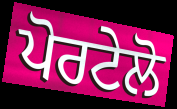
ਪੋਰਟੇਲੋ